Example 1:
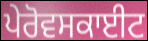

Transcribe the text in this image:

ਪੇਰੋਵਸਕਾਈਟ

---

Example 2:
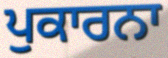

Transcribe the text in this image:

ਪੁਕਾਰਨਾ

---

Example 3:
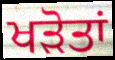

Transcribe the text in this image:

ਖੜੋਤਾਂ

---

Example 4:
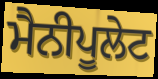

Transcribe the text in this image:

ਮੈਨੀਪੂਲੇਟ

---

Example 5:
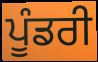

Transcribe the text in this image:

ਪੂੰਡਰੀ